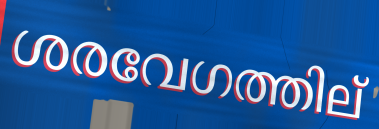
ശരവേഗത്തില്